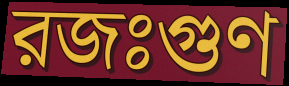
রজঃগুণ